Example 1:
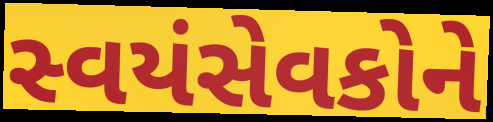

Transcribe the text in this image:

સ્વયંસેવકોને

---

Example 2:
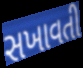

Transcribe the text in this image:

સખાવતી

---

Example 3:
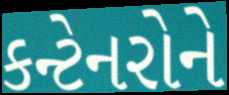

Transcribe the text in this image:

કન્ટેનરોને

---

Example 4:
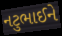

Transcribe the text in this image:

નટુભાઈને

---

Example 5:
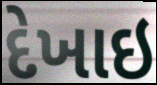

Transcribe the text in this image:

દેખાઇ